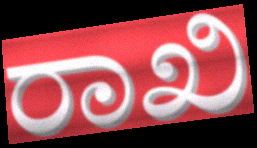
ರಾಖಿ